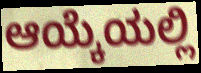
ಆಯ್ಕೆಯಲ್ಲಿ